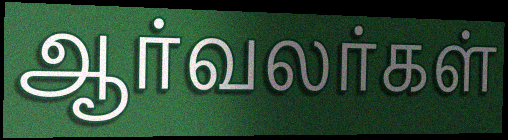
ஆர்வலர்கள்